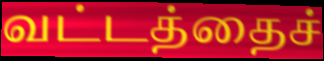
வட்டத்தைச்